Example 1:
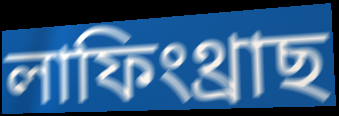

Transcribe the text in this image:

লাফিংথ্ৰাছ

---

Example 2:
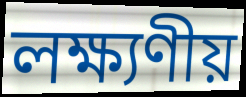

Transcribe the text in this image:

লক্ষ্যণীয়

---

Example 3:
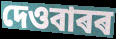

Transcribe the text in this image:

দেওবাৰৰ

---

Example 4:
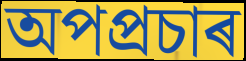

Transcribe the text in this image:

অপপ্ৰচাৰ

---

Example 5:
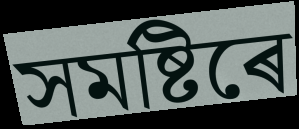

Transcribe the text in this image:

সমষ্টিৰে